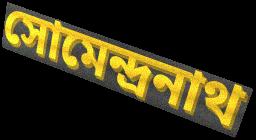
সোমেন্দ্রনাথ